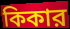
কিকার